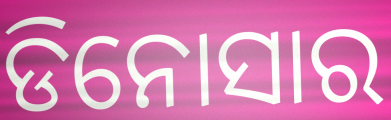
ଡିନୋସାର